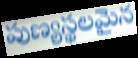
పుణ్యస్థలమైన